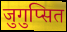
जुगुप्सित